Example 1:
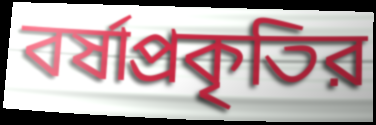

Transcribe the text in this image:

বর্ষাপ্রকৃতির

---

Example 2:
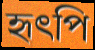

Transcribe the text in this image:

হৃৎপি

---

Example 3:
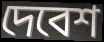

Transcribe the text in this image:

দেবেশ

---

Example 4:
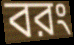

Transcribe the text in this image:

বরং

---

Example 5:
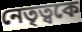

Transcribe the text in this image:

নেতৃত্বকে